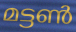
മട്ടൺ